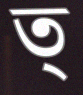
ত্